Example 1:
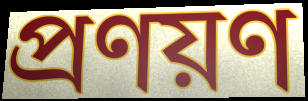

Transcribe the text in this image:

প্ৰণয়ণ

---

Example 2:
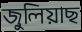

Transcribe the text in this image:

জুলিয়াছ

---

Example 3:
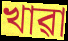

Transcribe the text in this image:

খাৱা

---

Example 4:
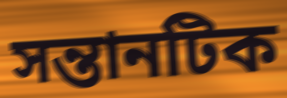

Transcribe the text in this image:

সন্তানটিক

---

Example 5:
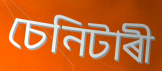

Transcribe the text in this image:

চেনিটাৰী